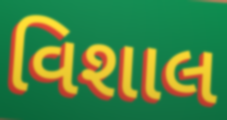
વિશાલ